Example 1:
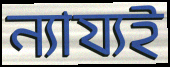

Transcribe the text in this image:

ন্যায্যই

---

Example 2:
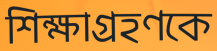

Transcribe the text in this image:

শিক্ষাগ্রহণকে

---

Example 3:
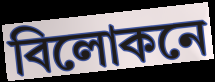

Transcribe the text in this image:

বিলোকনে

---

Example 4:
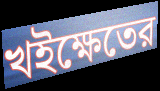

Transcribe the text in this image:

খইক্ষেতের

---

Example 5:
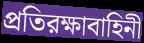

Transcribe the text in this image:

প্রতিরক্ষাবাহিনী